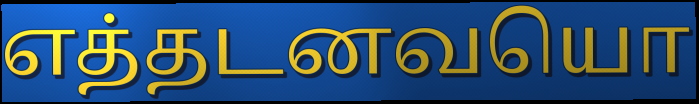
எத்தடனவயொ